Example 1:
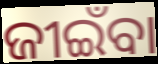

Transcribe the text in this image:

ଜୀଇଁବା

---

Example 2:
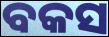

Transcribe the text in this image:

ବକସ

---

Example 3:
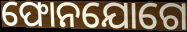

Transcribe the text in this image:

ଫୋନଯୋଗେ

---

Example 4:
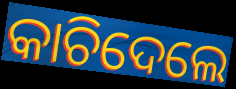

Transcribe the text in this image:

କାଚିଦେଲେ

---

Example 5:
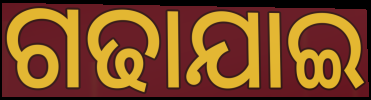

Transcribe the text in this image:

ଗଢାଯାଇ